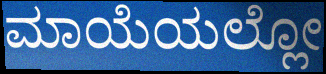
ಮಾಯೆಯಲ್ಲೋ